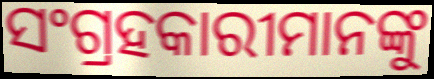
ସଂଗ୍ରହକାରୀମାନଙ୍କୁ